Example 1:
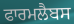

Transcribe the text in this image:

ਫਾਰਮਲੈਬਸ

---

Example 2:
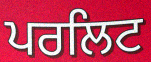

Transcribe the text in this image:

ਪਰਲਿਟ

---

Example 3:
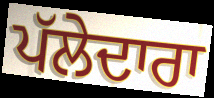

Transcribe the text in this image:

ਪੱਲੇਦਾਰਾ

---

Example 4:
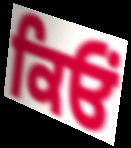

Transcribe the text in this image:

ਕਿਓਂ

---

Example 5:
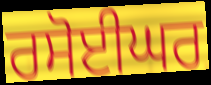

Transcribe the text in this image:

ਰਸੋਈਘਰ